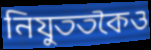
নিযুততকৈও